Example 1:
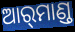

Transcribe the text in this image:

ଆର୍‌ମାଣ୍ଡ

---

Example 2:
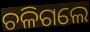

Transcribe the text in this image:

ଚଳିଗଲେ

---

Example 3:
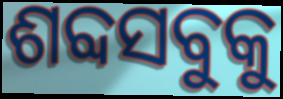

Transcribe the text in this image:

ଶବ୍ଦସବୁକୁ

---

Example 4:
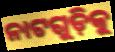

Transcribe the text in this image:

ନାଟଗୁଡ଼ିକୁ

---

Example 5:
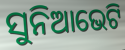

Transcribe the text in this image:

ସୁନିଆଭେଟି